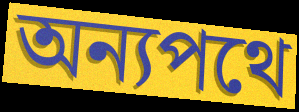
অন্যপথে